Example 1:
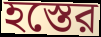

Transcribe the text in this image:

হস্তের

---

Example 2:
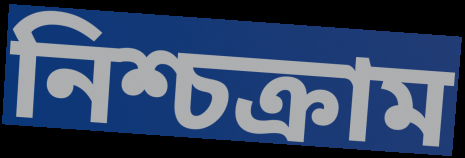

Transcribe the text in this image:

নিশ্চক্রাম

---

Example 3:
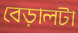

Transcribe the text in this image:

বেড়ালটা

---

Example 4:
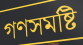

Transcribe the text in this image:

গণসমষ্টি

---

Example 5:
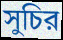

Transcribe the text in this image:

সুচির